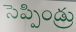
సెప్పిండ్రు